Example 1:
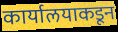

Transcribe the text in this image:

कार्यालयाकडून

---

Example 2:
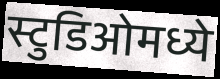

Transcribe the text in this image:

स्टुडिओमध्ये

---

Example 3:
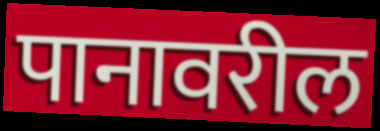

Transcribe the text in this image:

पानावरील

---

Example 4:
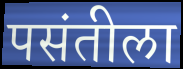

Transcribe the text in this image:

पसंतीला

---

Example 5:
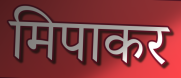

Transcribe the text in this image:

मिपाकर